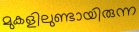
മുകളിലുണ്ടായിരുന്ന